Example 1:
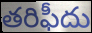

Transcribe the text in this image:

తరిఫీదు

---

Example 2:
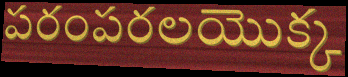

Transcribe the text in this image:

పరంపరలయొక్క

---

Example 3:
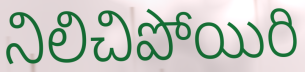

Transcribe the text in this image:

నిలిచిపోయిరి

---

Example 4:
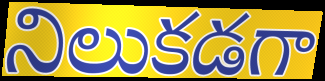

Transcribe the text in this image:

నిలుకడగా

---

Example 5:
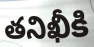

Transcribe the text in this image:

తనిఖీకి